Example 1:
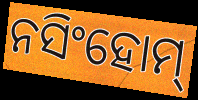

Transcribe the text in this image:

ନସିଂହୋମ୍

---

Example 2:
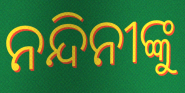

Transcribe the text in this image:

ନନ୍ଦିନୀଙ୍କୁ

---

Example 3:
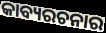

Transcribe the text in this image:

କାବ୍ୟରଚନାର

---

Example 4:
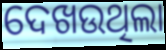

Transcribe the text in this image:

ଦେଖଉଥିଲା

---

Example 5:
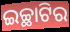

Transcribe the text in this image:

ଇଚ୍ଛାଟିର